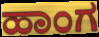
ಹಾಂಗ